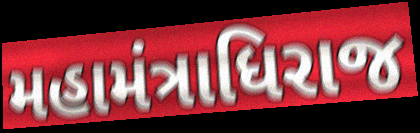
મહામંત્રાધિરાજ